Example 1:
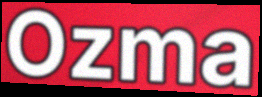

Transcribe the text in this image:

Ozma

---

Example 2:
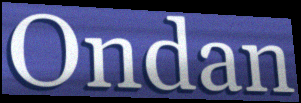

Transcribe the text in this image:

Ondan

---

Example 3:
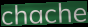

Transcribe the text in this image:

chache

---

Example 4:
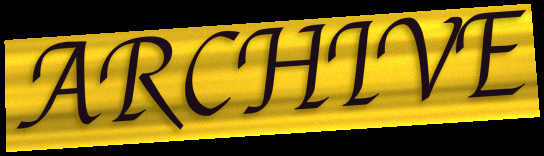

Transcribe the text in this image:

ARCHIVE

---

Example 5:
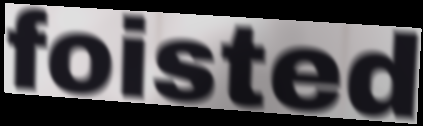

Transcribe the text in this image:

foisted